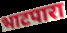
भाटपारा